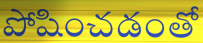
పోషించడంతో